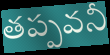
తప్పవనీ